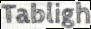
Tabligh